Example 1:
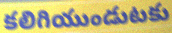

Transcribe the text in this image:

కలిగియుండుటకు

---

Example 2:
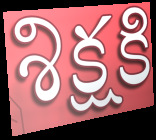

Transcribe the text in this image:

శిక్షకి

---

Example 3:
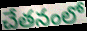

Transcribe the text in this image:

చేతనంలో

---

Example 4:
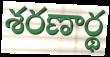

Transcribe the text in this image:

శరణార్థ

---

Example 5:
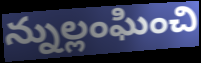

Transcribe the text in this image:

న్నుల్లంఘించి